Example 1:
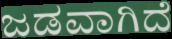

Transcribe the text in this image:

ಜಡವಾಗಿದೆ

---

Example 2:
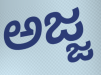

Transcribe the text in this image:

ಅಜ್ಜ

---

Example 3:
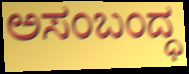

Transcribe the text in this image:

ಅಸಂಬಂದ್ಧ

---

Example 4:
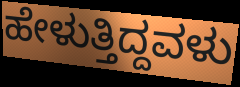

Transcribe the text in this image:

ಹೇಳುತ್ತಿದ್ದವಳು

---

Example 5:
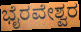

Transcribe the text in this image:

ಭೈರವೇಶ್ವರ